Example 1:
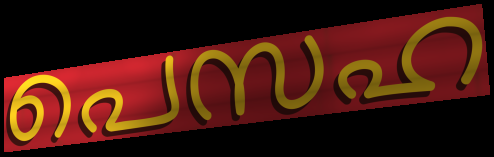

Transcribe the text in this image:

പെസഹ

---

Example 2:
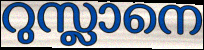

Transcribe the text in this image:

റുസ്ലാനെ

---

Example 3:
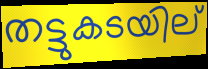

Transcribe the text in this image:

തട്ടുകടയില്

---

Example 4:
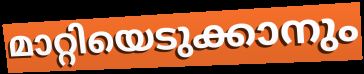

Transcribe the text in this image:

മാറ്റിയെടുക്കാനും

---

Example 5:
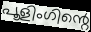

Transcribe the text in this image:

പൂളിംഗിന്റെ